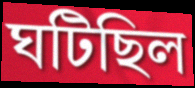
ঘটিছিল